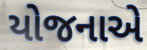
યોજનાએ